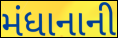
મંધાનાની